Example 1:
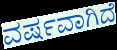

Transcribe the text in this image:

ವರ್ಷವಾಗಿದೆ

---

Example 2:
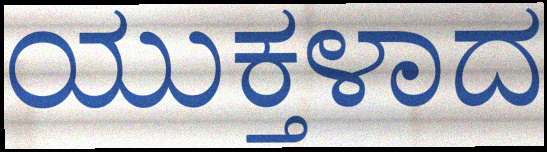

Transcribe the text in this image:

ಯುಕ್ತಳಾದ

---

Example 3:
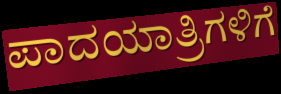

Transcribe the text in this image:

ಪಾದಯಾತ್ರಿಗಳಿಗೆ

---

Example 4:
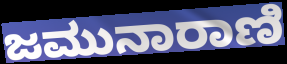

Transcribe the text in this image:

ಜಮುನಾರಾಣಿ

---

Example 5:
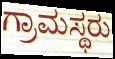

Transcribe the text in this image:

ಗ್ರಾಮಸ್ಥರು